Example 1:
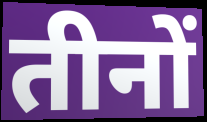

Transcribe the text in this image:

तीनों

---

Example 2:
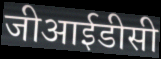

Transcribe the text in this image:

जीआईडीसी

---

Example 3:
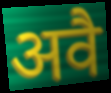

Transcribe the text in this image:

अवै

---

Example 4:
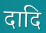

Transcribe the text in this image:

दादि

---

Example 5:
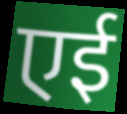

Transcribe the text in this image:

एई